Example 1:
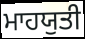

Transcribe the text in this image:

ਮਾਹਯੁਤੀ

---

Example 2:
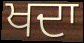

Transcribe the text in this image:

ਖਦਾ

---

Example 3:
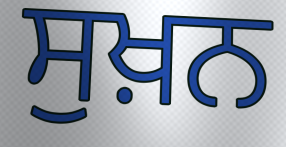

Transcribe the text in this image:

ਸੁਖ਼ਨ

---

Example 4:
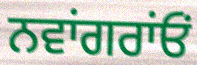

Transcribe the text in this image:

ਨਵਾਂਗਰਾਂਓਂ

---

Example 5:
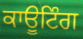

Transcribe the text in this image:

ਕਾਊਟਿੰਗ